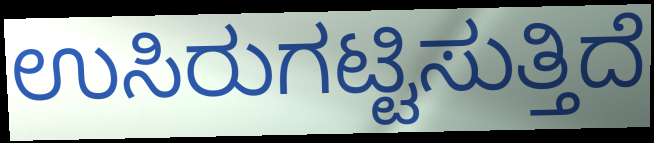
ಉಸಿರುಗಟ್ಟಿಸುತ್ತಿದೆ